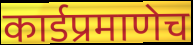
कार्डप्रमाणेच